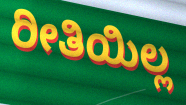
ರೀತಿಯಿಲ್ಲ